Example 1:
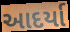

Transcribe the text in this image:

આદર્યા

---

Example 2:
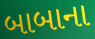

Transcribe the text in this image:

બાબાના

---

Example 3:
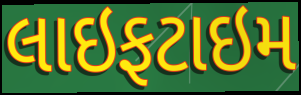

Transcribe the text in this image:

લાઇફટાઇમ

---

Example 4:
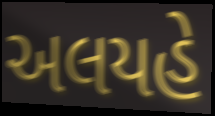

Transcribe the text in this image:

અલયહે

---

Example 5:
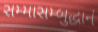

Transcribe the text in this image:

સમ્માસમ્બુદ્ધાનં